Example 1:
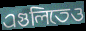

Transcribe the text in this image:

এগুলিতেও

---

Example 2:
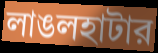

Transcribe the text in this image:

লাঙলহাটার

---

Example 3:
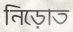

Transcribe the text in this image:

নিড়োত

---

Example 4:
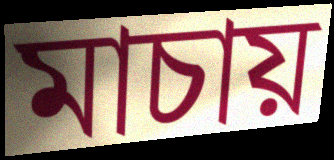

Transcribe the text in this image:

মাচায়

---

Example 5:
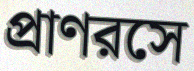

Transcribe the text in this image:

প্রাণরসে